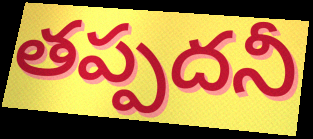
తప్పదనీ